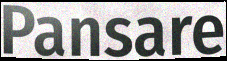
Pansare